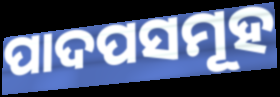
ପାଦପସମୂହ